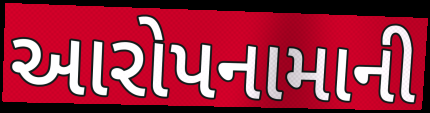
આરોપનામાની